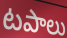
టపాలు